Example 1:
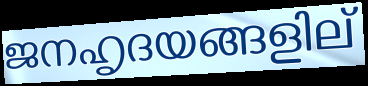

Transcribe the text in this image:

ജനഹൃദയങ്ങളില്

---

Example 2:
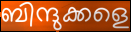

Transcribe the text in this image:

ബിന്ദുക്കളെ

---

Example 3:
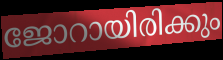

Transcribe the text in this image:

ജോറായിരിക്കും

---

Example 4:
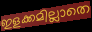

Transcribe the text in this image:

ഇളക്കമില്ലാതെ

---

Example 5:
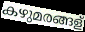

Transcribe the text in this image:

കഴുമരങ്ങള്